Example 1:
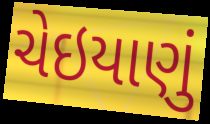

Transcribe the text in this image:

ચેઇયાણું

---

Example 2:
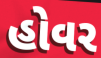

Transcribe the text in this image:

હોવર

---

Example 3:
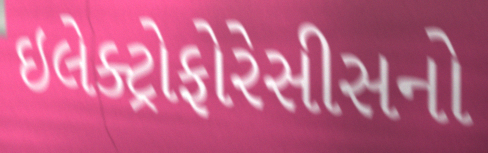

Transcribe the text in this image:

ઇલેક્ટ્રોફોરેસીસનો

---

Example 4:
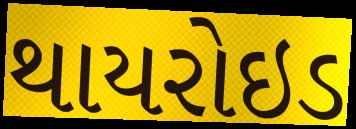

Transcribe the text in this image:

થાયરોઇડ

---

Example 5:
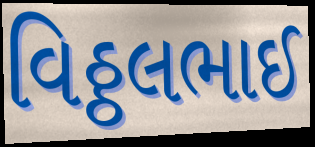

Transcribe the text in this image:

વિઠ્ઠલભાઈ